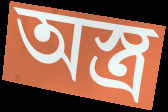
অস্ত্র